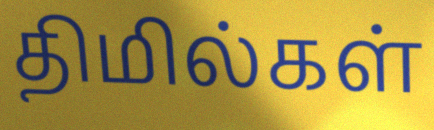
திமில்கள்